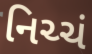
નિચ્ચં